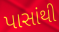
પાસાંથી